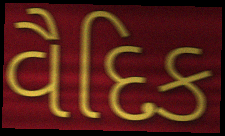
વૈદિક